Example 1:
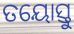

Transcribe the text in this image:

ତୟୋସ୍ତୁ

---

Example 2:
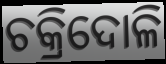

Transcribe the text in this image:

ଚକ୍ରିଦୋଳି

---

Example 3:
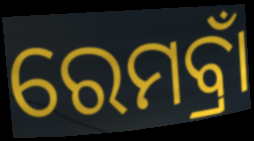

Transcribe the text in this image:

ରେମବ୍ରାଁ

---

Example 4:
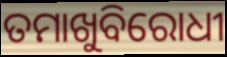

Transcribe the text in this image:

ତମାଖୁବିରୋଧୀ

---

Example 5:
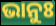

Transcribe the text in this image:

ଭାନୁଃ